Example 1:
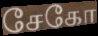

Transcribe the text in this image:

சேகோ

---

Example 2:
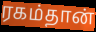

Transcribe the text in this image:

ரகம்தான்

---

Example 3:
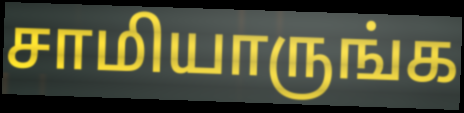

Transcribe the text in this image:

சாமியாருங்க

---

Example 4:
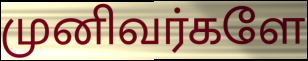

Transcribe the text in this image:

முனிவர்களே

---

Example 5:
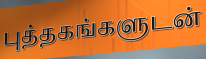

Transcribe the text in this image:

புத்தகங்களுடன்